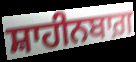
ਸ਼ਾਹੀਨਬਾਗ਼